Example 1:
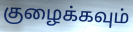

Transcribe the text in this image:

குழைக்கவும்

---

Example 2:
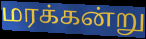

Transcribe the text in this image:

மரக்கன்று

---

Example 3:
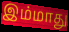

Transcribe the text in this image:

இம்மாது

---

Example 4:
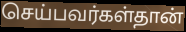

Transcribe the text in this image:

செய்பவர்கள்தான்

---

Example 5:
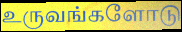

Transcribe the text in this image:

உருவங்களோடு